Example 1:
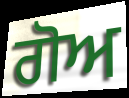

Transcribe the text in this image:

ਗੋਅ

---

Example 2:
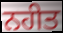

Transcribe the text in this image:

ਨਹੀਤ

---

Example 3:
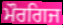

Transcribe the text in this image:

ਮੌਰਗਿਜ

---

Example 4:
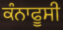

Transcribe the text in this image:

ਕੰਨਾਫੂਸੀ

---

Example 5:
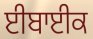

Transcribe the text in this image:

ਈਬਾਈਕ